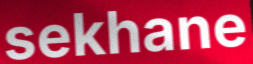
sekhane